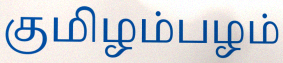
குமிழம்பழம்